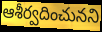
ఆశీర్వదించునని